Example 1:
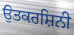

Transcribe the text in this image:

ਉਤਕਰਸ਼ਿਨੀ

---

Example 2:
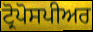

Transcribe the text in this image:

ਟ੍ਰੋਪੋਸਪੀਅਰ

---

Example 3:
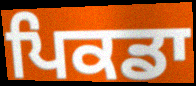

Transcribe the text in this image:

ਪਿਕਡਾ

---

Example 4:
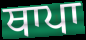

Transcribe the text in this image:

ਥਾਪਾ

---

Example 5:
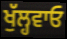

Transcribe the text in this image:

ਖੁੱਲ੍ਹਵਾਓ